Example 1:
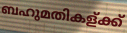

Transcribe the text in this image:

ബഹുമതികള്ക്ക്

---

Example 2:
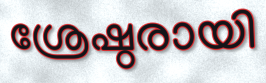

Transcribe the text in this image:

ശ്രേഷ്ഠരായി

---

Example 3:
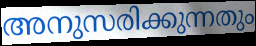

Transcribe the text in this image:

അനുസരിക്കുന്നതും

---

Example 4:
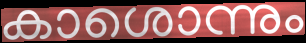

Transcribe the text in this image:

കാശൊന്നും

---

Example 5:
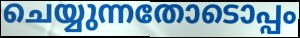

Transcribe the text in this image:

ചെയ്യുന്നതോടൊപ്പം